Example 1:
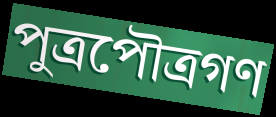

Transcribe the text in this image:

পুত্রপৌত্রগণ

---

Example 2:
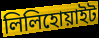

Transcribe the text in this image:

লিলিহোয়াইট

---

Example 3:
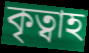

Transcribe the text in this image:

কৃত্বাহ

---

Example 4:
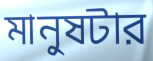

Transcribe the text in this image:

মানুষটার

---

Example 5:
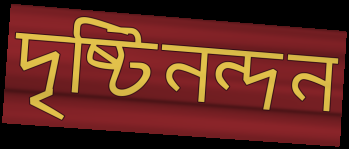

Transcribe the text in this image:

দৃষ্টিনন্দন